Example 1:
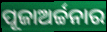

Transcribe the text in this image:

ପୂଜାଅର୍ଚ୍ଚନାର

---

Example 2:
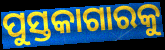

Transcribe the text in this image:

ପୁସ୍ତକାଗାରକୁ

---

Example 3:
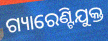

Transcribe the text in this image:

ଗ୍ୟାରେଣ୍ଟିଯୁକ୍ତ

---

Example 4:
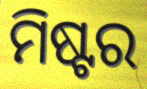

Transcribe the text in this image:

ମିଷ୍ଟର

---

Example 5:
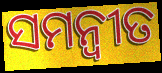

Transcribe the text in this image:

ସମନ୍ଵୀତ